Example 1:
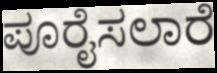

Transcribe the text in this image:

ಪೂರೈಸಲಾರೆ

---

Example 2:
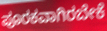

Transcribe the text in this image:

ಪೂರಕವಾಗಿರಬೇಕೆ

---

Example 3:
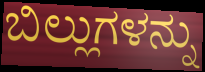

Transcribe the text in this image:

ಬಿಲ್ಲುಗಳನ್ನು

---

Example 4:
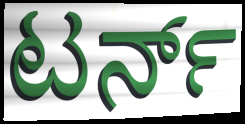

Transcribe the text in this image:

ಟರ್ನ್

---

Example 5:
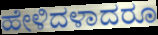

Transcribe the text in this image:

ಹೇಳಿದಳಾದರೂ